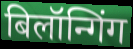
बिलॉन्गिंग